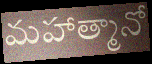
మహాత్మానో